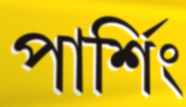
পার্শিং